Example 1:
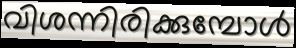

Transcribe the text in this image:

വിശന്നിരിക്കുമ്പോൾ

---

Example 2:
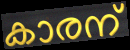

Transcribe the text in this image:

കാരന്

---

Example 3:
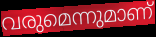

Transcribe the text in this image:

വരുമെന്നുമാണ്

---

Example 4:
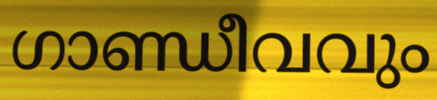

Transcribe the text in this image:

ഗാണ്ഡീവവും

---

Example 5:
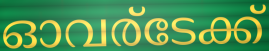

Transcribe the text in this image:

ഓവര്ടേക്ക്